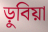
ড়ুবিয়া